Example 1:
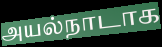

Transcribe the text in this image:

அயல்நாடாக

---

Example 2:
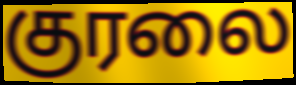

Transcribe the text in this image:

குரலை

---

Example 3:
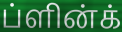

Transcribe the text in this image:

ப்ளின்க்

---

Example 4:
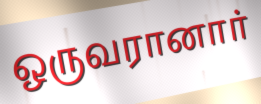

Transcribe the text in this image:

ஒருவரானார்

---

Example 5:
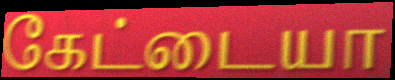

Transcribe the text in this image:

கேட்டையா